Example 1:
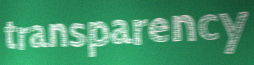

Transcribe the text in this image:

transparency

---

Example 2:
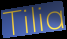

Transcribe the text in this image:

Tilia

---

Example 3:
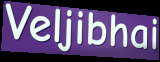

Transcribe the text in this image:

Veljibhai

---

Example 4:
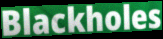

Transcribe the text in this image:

Blackholes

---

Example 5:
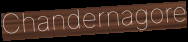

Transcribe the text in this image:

Chandernagore